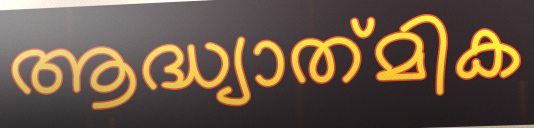
ആദ്ധ്യാത്‌മിക